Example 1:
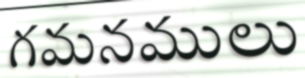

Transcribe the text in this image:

గమనములు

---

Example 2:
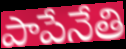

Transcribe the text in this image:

పాపేనేతి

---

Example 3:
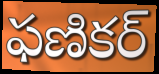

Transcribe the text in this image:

ఫణికర్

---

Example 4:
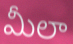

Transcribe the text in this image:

మీలా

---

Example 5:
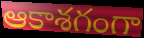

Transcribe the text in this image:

ఆకాశగంగా